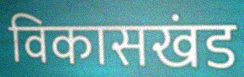
विकासखंड